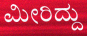
ಮೀರಿದ್ದು